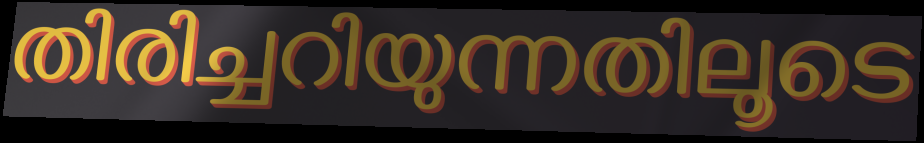
തിരിച്ചറിയുന്നതിലൂടെ